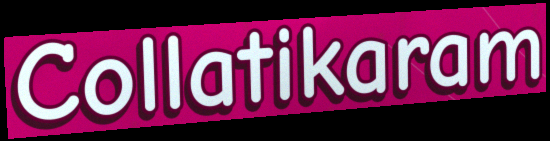
Collatikaram